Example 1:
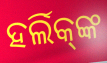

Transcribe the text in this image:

ହର୍ଲିକ୍‌ଙ୍କ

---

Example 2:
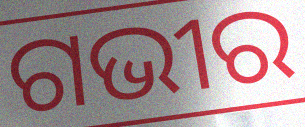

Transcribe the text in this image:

ଗଭୀର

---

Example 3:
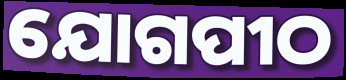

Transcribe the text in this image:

ଯୋଗପୀଠ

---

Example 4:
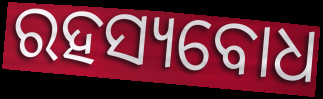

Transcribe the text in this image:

ରହସ୍ୟବୋଧ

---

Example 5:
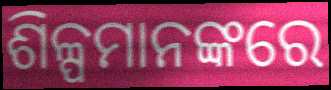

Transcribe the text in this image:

ଶିଳ୍ପମାନଙ୍କରେ